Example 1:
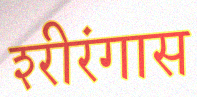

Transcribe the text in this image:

श्रीरंगास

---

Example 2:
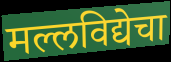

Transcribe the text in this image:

मल्लविद्येचा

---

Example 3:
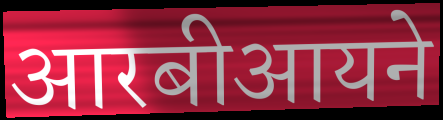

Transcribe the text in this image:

आरबीआयने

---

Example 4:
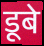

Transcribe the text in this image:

डूबे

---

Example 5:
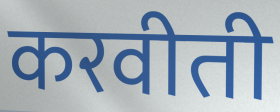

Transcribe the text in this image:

करवीती